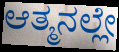
ಆತ್ಮನಲ್ಲೇ